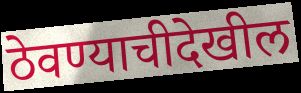
ठेवण्याचीदेखील